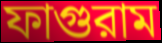
ফাগুরাম